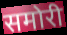
समोरी